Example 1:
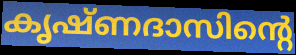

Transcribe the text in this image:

കൃഷ്ണദാസിന്റെ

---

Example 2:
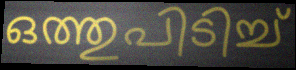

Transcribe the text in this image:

ഒത്തുപിടിച്ച്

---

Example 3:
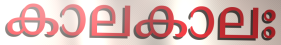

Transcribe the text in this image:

കാലകാലഃ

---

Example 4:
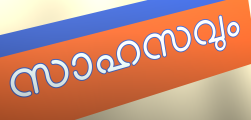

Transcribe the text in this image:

സാഹസവും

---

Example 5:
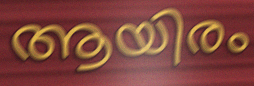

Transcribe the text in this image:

ആയിരം